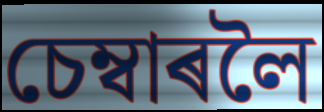
চেম্বাৰলৈ